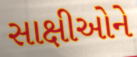
સાક્ષીઓને